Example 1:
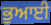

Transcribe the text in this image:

ਭੁਆਈ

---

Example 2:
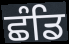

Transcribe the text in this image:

ਛੰਡਿ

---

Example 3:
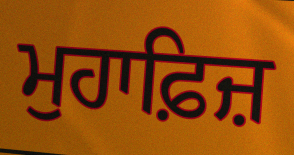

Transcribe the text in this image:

ਮੁਹਾਫ਼ਿਜ਼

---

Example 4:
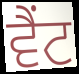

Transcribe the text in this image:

ਵੈਂਟ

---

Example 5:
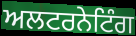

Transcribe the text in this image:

ਅਲਟਰਨੇਟਿੰਗ